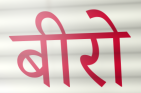
बीरो